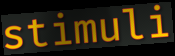
stimuli